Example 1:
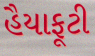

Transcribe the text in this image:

હૈયાફૂટી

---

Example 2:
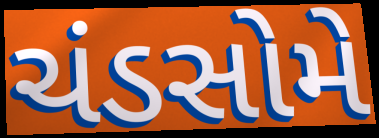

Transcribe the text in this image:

ચંડસોમે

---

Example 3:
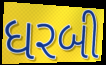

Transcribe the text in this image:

ધરબી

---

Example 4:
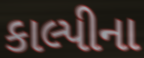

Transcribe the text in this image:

કાલ્પીના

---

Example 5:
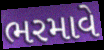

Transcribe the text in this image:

ભરમાવે